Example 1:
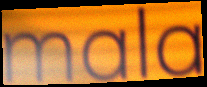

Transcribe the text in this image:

mala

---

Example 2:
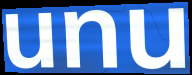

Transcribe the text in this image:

unu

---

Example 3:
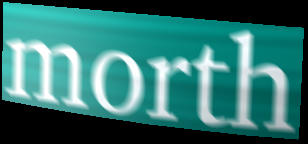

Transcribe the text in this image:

morth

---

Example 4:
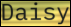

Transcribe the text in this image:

Daisy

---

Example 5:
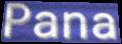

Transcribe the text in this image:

Pana